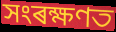
সংৰক্ষণত